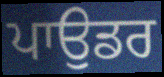
ਪਾਉਡਰ